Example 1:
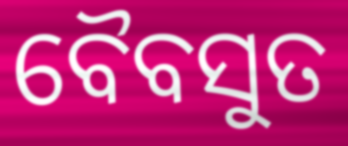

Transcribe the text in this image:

ବୈବସୁତ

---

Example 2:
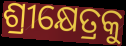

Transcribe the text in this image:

ଶ୍ରୀକ୍ଷେତ୍ରକୁ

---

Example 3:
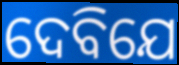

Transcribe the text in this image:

ଦେବିଯେ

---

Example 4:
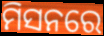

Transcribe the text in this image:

ମିସନରେ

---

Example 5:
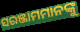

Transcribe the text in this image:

ସରଞ୍ଜାମମାନଙ୍କୁ